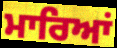
ਮਾਰਿਆਂ